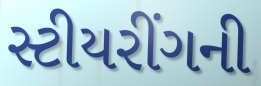
સ્ટીયરીંગની